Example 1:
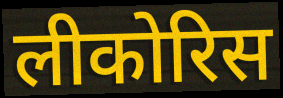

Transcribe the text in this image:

लीकोरिस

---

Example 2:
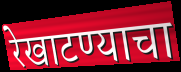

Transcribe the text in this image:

रेखाटण्याचा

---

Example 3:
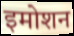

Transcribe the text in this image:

इमोशन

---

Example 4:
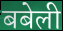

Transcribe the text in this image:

बबेली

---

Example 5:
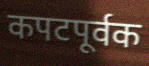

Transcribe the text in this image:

कपटपूर्वक